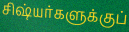
சிஷ்யர்களுக்குப்